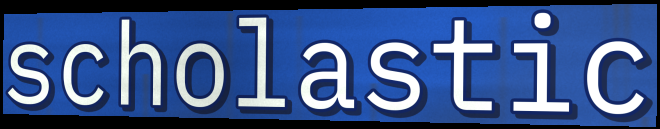
scholastic